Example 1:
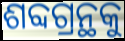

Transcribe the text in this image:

ଶବ୍ଦଗ୍ରନ୍ଥକୁ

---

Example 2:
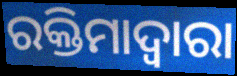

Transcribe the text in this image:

ରକ୍ତିମାଦ୍ୱାରା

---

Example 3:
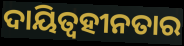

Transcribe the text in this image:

ଦାୟିତ୍ଵହୀନତାର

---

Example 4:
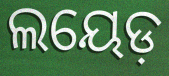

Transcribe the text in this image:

ଲୟେଡ଼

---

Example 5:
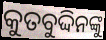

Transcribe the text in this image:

କୁତବୁଦ୍ଦିନଙ୍କୁ